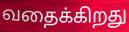
வதைக்கிறது